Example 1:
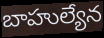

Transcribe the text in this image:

బాహుల్యేన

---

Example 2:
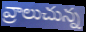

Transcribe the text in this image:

వ్రాలుచున్న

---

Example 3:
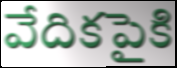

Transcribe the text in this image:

వేదికపైకి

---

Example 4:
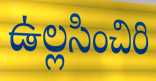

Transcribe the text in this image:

ఉల్లసించిరి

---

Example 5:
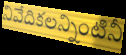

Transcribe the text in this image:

నివేదికలన్నింటినీ